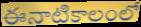
ఈనాటికాలంలో